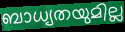
ബാധ്യതയുമില്ല